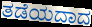
ತಡೆಯದಾದ